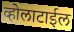
व्होलाटाईल